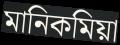
মানিকমিয়া